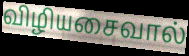
விழியசைவால்